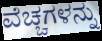
ವೆಚ್ಚಗಳನ್ನು